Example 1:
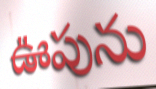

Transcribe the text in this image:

ఊపును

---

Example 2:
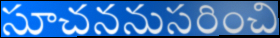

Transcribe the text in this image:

సూచననుసరించి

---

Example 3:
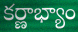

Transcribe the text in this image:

కర్ణాభ్యాం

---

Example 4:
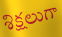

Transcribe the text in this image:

శిక్షలుగా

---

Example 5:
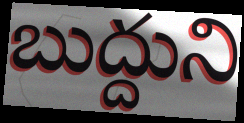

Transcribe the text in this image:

బుద్దుని